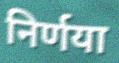
निर्णया